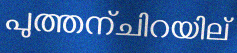
പുത്തന്ചിറയില്